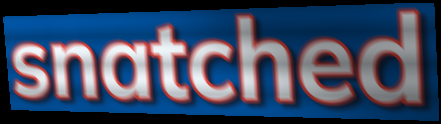
snatched